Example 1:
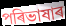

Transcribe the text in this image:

পৰিভাষাৰ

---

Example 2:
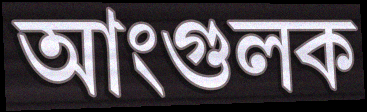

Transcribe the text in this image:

আংগুলক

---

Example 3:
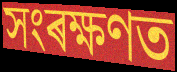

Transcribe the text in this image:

সংৰক্ষণত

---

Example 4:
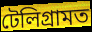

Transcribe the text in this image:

টেলিগ্ৰামত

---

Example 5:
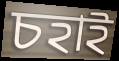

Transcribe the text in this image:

চহাই